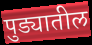
पुड्यातील